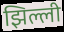
झिल्ली